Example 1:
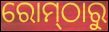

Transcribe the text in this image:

ରୋମ୍‌ଠାରୁ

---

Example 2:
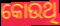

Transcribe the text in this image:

କୋଉଥି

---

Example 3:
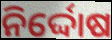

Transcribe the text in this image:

ନିର୍ଦ୍ଦୋଷ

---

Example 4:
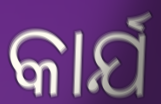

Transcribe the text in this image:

କାର୍ଯ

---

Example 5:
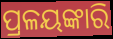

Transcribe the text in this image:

ପ୍ରଳୟଙ୍କାରି